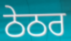
ਠੇਠਰ